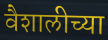
वैशालीच्या